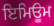
ਇਮਿਊਮ